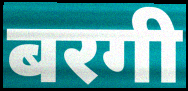
बरगी